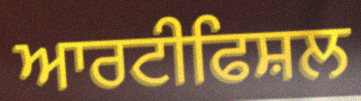
ਆਰਟੀਫਿਸ਼ਲ